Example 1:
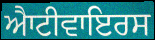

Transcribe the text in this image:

ਐਾਟੀਵਾਇਰਸ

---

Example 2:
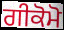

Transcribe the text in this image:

ਗੀਕੋਮੋ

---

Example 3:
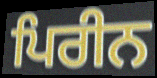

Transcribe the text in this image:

ਪਿਰੀਨ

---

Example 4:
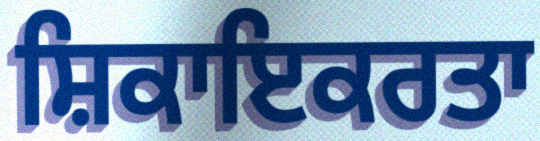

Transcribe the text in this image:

ਸ਼ਿਕਾਇਕਰਤਾ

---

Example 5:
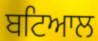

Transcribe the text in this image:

ਬਟਿਆਲ